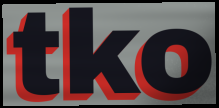
tko